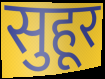
सुहूर